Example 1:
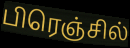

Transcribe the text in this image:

பிரெஞ்சில்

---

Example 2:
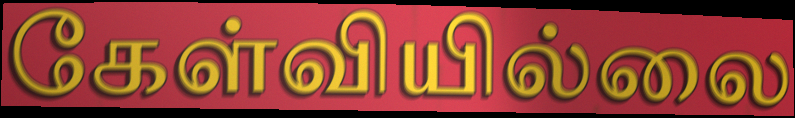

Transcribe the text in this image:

கேள்வியில்லை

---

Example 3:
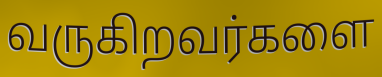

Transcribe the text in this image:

வருகிறவர்களை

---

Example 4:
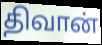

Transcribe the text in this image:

திவான்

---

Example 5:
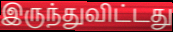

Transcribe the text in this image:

இருந்துவிட்டது